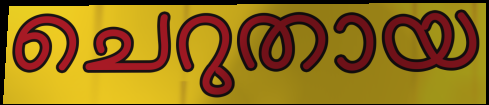
ചെറുതായ